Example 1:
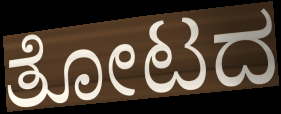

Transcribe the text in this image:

ತೋಟದ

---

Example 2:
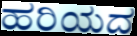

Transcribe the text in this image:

ಹರಿಯದ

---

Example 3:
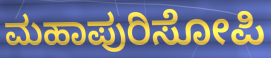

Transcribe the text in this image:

ಮಹಾಪುರಿಸೋಪಿ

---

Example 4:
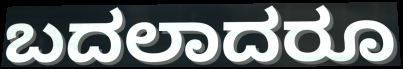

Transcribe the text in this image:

ಬದಲಾದರೂ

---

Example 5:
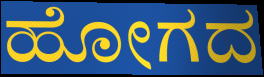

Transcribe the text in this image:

ಹೋಗದ